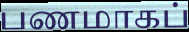
பணமாகப்